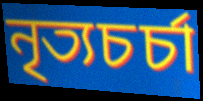
নৃত্যচর্চা